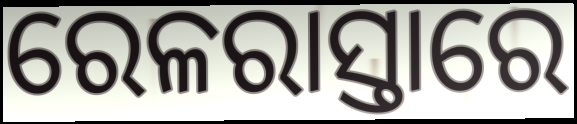
ରେଳରାସ୍ତାରେ